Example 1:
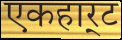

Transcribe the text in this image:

एकहार्ट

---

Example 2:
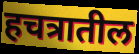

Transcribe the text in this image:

हचत्रातील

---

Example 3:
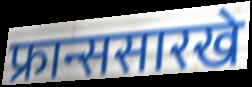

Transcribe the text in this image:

फ्रान्ससारखे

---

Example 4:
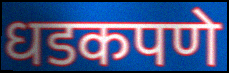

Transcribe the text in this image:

धडकपणे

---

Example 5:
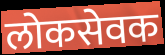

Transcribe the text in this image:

लोकसेवक